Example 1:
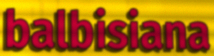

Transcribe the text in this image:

balbisiana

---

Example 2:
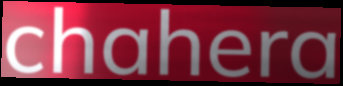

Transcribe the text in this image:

chahera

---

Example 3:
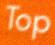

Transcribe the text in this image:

Top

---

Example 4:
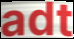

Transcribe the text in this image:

adt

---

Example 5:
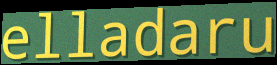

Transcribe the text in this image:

elladaru